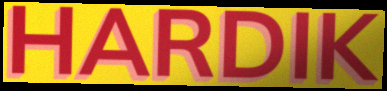
HARDIK